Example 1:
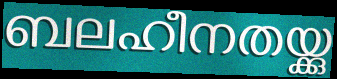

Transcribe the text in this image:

ബലഹീനതയ്ക്കു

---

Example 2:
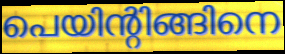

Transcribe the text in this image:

പെയിന്റിങ്ങിനെ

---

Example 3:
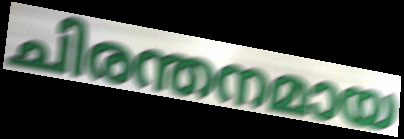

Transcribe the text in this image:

ചിരന്തനമായ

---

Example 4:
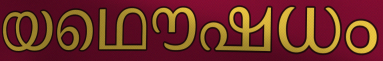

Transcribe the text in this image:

യഥൌഷധം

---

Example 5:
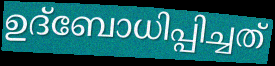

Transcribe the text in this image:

ഉദ്ബോധിപ്പിച്ചത്